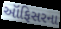
ઑફિસરના